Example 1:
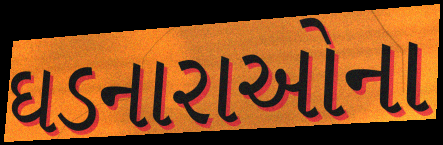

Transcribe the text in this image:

ઘડનારાઓના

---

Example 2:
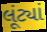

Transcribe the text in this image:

લૂંટ્યાં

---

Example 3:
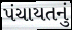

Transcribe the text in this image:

પંચાયતનું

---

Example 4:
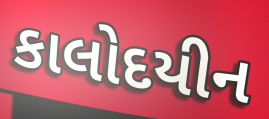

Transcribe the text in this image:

કાલોદયીન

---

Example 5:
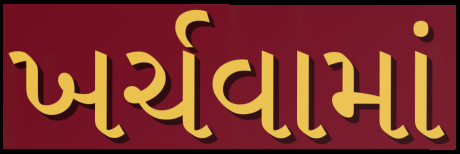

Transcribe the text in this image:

ખર્ચવામાં